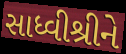
સાધ્વીશ્રીને